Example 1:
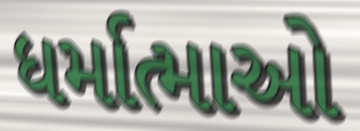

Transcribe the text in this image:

ધર્માત્માઓ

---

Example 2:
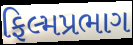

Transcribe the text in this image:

ફિલ્મપ્રભાગ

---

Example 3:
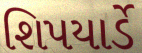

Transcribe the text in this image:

શિપયાર્ડે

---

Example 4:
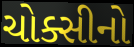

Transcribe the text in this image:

ચોક્સીનો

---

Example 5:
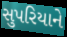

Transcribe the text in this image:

સુપરિયાને